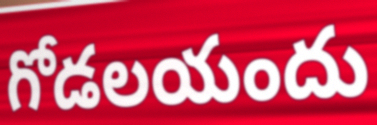
గోడలయందు